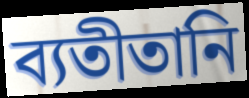
ব্যতীতানি